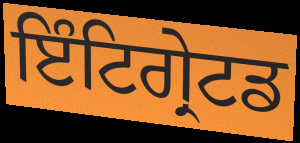
ਇੰਟਿਗ੍ਰੇਟਡ